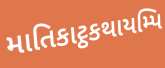
માતિકાટ્ઠકથાયમ્પિ